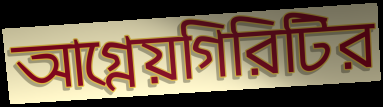
আগ্নেয়গিরিটির